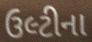
ઉલ્ટીના